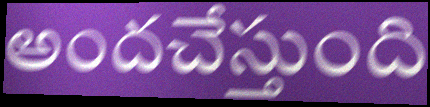
అందచేస్తుంది